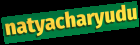
natyacharyudu